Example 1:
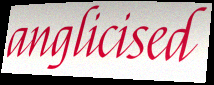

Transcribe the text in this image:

anglicised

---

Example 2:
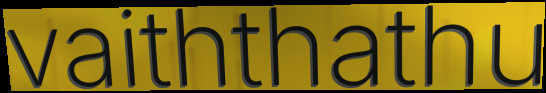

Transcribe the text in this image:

vaiththathu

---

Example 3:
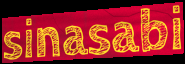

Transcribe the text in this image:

sinasabi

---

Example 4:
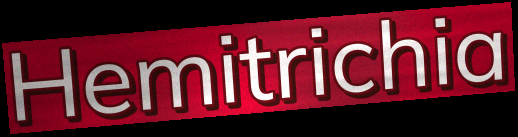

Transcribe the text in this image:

Hemitrichia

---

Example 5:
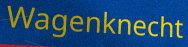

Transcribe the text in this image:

Wagenknecht